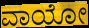
ವಾಯೋ